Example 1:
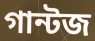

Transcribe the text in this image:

গান্টজ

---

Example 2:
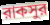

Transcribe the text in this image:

রাকসুর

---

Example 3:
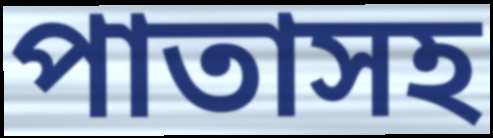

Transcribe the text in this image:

পাতাসহ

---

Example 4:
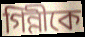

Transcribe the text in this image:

গিন্নীকে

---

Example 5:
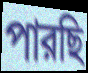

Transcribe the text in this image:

পারছি